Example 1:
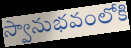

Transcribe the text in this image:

స్వానుభవంలోకి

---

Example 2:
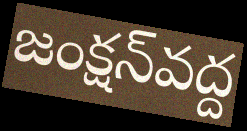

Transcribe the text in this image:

జంక్షన్‌వద్ద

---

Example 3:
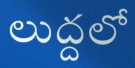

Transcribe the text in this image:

లుద్దలో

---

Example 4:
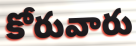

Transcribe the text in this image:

కోరువారు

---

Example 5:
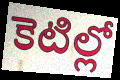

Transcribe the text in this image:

కెటిల్లో